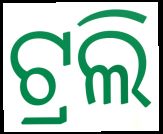
ଟ୍ରଲି